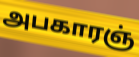
அபகாரஞ்